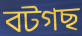
বটগছ